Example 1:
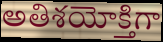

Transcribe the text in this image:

అతిశయోక్తిగా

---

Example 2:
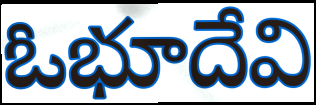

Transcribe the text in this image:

ఓభూదేవి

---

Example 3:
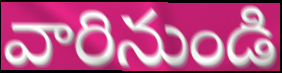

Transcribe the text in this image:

వారినుండి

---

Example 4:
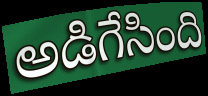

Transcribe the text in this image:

అడిగేసింది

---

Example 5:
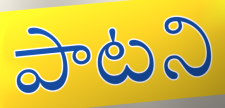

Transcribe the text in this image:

పాటని